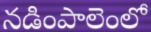
నడింపాలెంలో